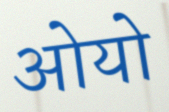
ओयो